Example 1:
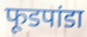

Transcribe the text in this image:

फूडपांडा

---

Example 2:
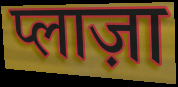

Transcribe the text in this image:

प्लाज़ा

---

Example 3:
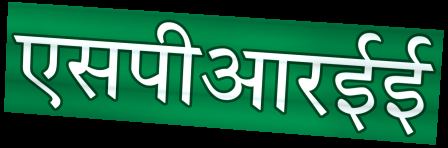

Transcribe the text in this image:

एसपीआरईई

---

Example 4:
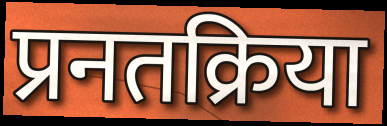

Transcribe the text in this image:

प्रनतक्रिया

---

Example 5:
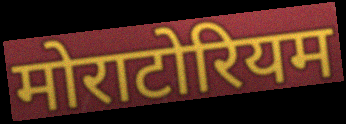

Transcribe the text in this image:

मोराटोरियम